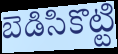
బెడిసికొట్టి